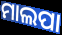
ମାଲପା